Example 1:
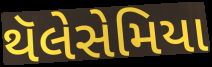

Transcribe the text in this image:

થૅલેસેમિયા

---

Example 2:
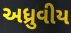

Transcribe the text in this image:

અધ્રુવીય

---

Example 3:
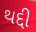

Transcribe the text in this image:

થદ્દી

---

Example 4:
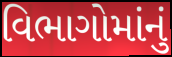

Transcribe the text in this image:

વિભાગોમાંનું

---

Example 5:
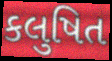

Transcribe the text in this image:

કલુષિત